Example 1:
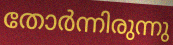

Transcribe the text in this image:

തോർന്നിരുന്നു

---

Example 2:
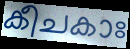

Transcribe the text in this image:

കീചകാഃ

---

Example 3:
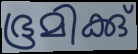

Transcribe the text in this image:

ഭൂമിക്കു്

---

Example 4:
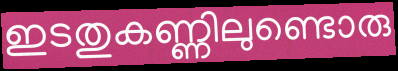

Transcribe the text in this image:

ഇടതുകണ്ണിലുണ്ടൊരു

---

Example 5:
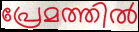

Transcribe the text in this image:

പ്രേമത്തിൽ